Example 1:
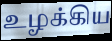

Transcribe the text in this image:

உழக்கிய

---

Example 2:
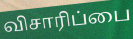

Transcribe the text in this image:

விசாரிப்பை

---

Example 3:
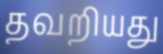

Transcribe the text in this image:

தவறியது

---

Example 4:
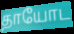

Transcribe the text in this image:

தாயோட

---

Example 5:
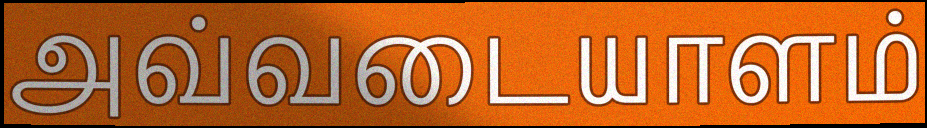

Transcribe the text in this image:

அவ்வடையாளம்